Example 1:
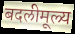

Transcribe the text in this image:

बदलीमूल्य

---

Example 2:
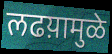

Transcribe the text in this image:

लढय़ामुळे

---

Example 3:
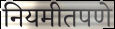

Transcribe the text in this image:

नियमीतपणे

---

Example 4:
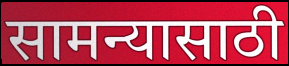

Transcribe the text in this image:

सामन्यासाठी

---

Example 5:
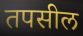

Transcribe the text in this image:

तपसील